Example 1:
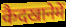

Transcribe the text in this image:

कैदखानेमें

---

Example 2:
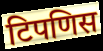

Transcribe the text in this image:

टिपणिस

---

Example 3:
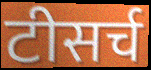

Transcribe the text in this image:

टीसर्च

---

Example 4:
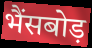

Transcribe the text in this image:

भैंसबोड़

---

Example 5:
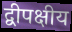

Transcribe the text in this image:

द्वीपक्षीय